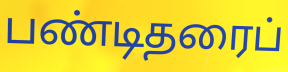
பண்டிதரைப்